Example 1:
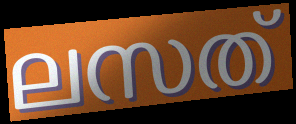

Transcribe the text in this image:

ലസത്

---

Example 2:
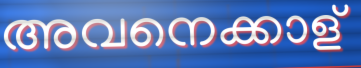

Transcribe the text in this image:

അവനെക്കാള്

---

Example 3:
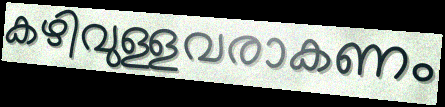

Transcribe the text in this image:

കഴിവുള്ളവരാകണം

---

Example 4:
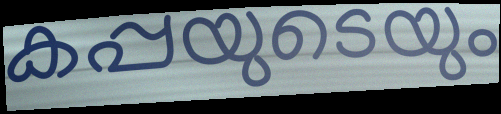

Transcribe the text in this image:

കപ്പയുടെയും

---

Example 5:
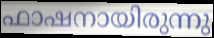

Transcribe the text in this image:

ഫാഷനായിരുന്നു